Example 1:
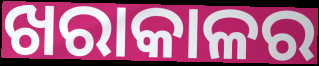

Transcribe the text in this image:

ଖରାକାଳର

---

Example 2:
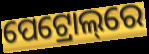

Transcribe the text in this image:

ପେଟ୍ରୋଲ୍‌ରେ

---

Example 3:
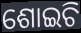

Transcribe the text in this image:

ଶୋଇଚି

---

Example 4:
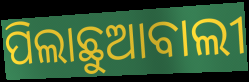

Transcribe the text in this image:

ପିଲାଛୁଆବାଲୀ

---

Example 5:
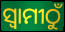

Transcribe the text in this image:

ସ୍ୱାମୀଠୁଁ